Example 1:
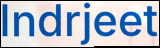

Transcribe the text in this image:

Indrjeet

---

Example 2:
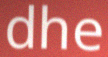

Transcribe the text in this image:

dhe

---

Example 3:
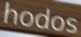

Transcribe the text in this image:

hodos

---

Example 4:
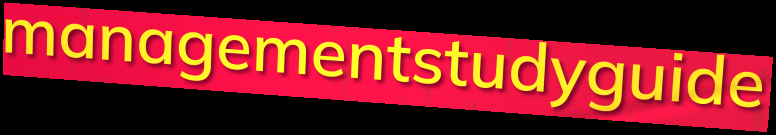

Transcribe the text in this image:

managementstudyguide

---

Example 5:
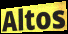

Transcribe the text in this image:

Altos